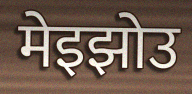
मेइझोउ